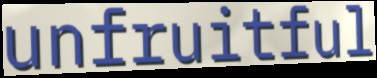
unfruitful